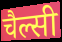
चैल्सी